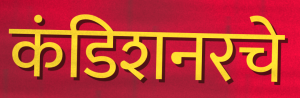
कंडिशनरचे